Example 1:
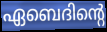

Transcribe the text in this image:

ഏബെദിന്റെ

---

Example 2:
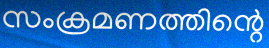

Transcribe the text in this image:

സംക്രമണത്തിന്റെ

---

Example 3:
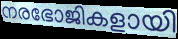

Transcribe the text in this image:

നരഭോജികളായി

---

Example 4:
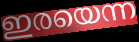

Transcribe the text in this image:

ഇരയെന്ന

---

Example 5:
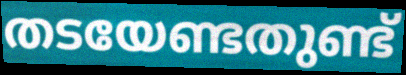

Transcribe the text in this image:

തടയേണ്ടതുണ്ട്